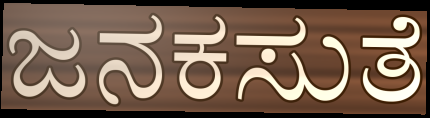
ಜನಕಸುತೆ